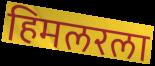
हिमलरला